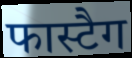
फास्‍टैग